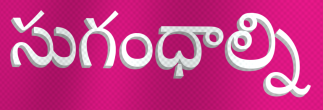
సుగంధాల్ని